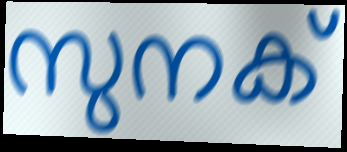
സുനക്